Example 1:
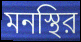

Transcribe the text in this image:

মনস্থির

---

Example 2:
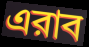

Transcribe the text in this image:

এরাব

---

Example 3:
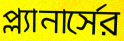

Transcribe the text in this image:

প্ল্যানার্সের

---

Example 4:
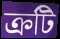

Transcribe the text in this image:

ক্রটি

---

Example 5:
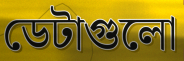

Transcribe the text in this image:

ডেটাগুলো